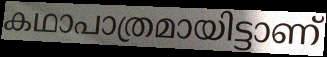
കഥാപാത്രമായിട്ടാണ്